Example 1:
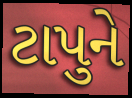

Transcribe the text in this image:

ટાપુને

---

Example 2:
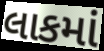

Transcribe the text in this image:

લાકમાં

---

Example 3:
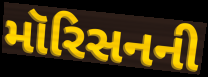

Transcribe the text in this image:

મૉરિસનની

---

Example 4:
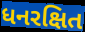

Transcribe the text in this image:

ધનરક્ષિત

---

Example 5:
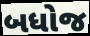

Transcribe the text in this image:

બધોજ